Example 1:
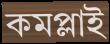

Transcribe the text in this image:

কমপ্লাই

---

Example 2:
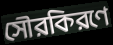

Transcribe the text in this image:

সৌরকিরণে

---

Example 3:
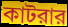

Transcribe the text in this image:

কাটরার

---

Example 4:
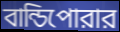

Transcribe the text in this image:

বান্ডিপোরার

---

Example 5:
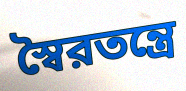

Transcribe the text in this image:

স্বৈরতন্ত্রে